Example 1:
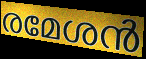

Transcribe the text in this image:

രമേശൻ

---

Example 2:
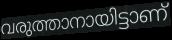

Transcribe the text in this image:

വരുത്താനായിട്ടാണ്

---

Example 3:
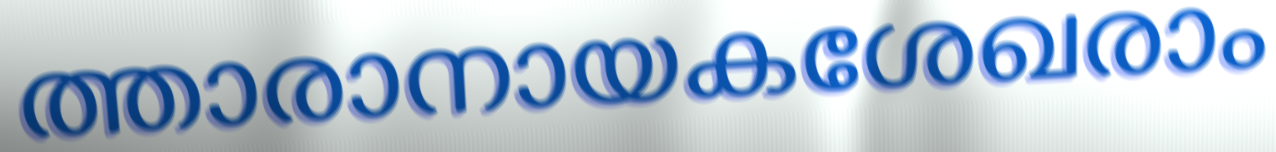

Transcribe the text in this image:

ത്താരാനായകശേഖരാം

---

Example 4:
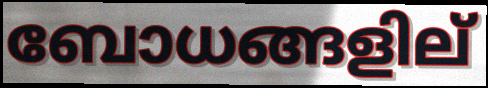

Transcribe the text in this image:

ബോധങ്ങളില്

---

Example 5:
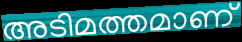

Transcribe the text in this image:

അടിമത്തമാണ്